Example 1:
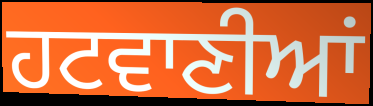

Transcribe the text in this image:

ਹਟਵਾਣੀਆਂ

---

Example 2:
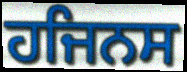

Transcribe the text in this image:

ਹਜਿਨਸ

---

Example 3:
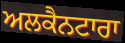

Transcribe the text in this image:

ਅਲਕੈਨਟਾਰਾ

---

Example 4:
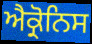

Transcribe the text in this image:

ਐਕ੍ਰੋਨਿਸ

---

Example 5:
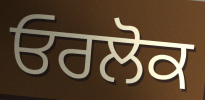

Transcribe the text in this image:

ਓਰਲੋਕ